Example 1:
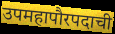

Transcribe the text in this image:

उपमहापौरपदाची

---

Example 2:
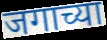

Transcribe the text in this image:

जगाच्या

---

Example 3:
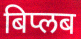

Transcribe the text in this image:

बिप्लब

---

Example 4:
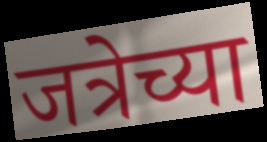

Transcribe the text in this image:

जत्रेच्या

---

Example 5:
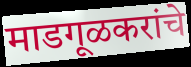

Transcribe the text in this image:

माडगूळकरांचे